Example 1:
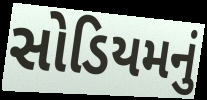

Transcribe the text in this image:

સોડિયમનું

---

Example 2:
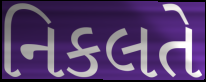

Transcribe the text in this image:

નિકલતે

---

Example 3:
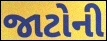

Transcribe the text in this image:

જાટોની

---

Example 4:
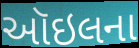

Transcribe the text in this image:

ઑઇલના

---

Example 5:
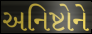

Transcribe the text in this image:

અનિષ્ટોને